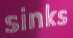
sinks